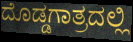
ದೊಡ್ಡಗಾತ್ರದಲ್ಲಿ